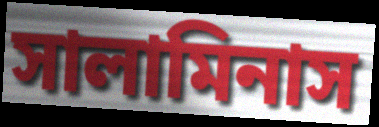
সালামিনাস